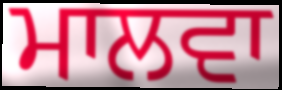
ਮਾਲਵਾ